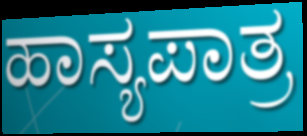
ಹಾಸ್ಯಪಾತ್ರ